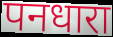
पनधारा